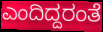
ಎಂದಿದ್ದರಂತೆ